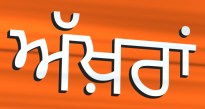
ਅੱਖ਼ਰਾਂ